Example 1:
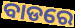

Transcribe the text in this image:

ବାଡରେ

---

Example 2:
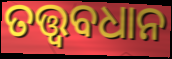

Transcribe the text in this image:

ତତ୍ତ୍ୱବଧାନ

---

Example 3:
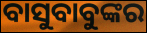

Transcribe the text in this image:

ବାସୁବାବୁଙ୍କର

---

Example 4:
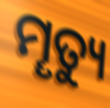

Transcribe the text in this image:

ମୄତ୍ୟୁ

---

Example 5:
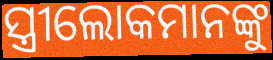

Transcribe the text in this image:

ସ୍ତ୍ରୀଲୋକମାନଙ୍କୁ